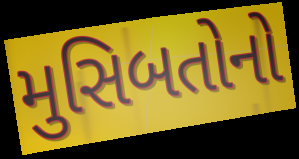
મુસિબતોનો